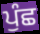
ਪੁੰਛ